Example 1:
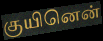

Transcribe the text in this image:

குயினென்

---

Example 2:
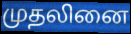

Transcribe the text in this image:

முதலினை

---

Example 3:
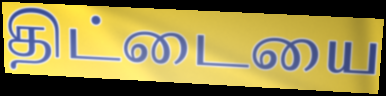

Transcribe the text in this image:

திட்டையை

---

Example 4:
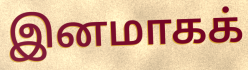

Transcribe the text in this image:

இனமாகக்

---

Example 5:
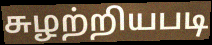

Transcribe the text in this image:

சுழற்றியபடி